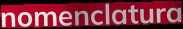
nomenclatura